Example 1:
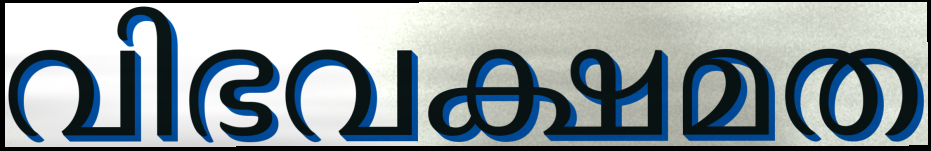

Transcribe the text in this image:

വിഭവക്ഷമത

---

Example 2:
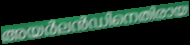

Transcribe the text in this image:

അയർലൻഡിനെതിരായ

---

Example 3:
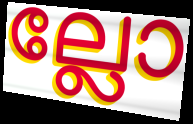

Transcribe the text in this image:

ല്ലോ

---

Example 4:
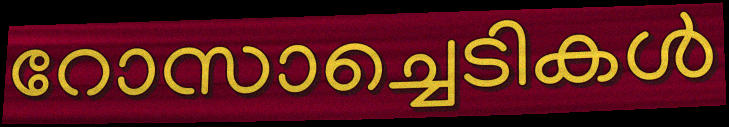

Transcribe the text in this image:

റോസാച്ചെടികൾ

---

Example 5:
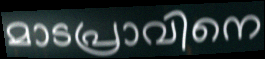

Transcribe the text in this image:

മാടപ്രാവിനെ